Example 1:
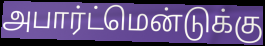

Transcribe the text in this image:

அபார்ட்மென்டுக்கு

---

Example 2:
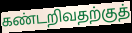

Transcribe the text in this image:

கண்டறிவதற்குத்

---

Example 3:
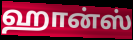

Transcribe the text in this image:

ஹான்ஸ்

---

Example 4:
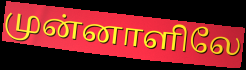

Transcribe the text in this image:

முன்னாளிலே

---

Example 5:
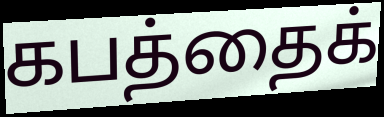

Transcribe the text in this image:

கபத்தைக்